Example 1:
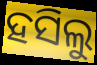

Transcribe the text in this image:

ହସିଲୁ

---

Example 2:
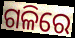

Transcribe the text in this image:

ଗଳିରେ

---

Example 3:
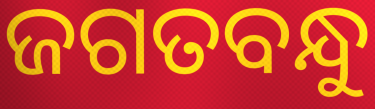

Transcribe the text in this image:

ଜଗତବନ୍ଧୁ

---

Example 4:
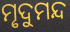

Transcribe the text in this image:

ମୃଦୁମନ୍ଦ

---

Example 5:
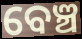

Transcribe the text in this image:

ବେଞ୍ଚ